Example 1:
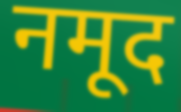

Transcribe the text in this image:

नमूद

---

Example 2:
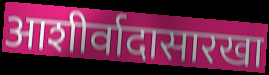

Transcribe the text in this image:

आशीर्वादासारखा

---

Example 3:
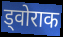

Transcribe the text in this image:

ड्वोराक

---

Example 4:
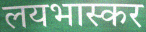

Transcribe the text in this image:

लयभास्कर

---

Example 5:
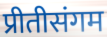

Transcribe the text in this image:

प्रीतीसंगम